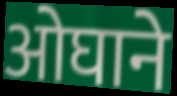
ओघाने